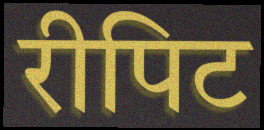
रीपिट